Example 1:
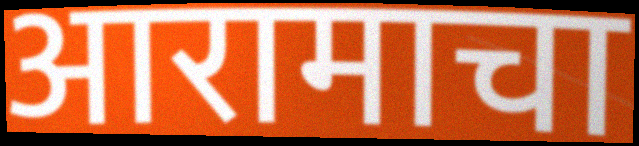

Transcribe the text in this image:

आरामाचा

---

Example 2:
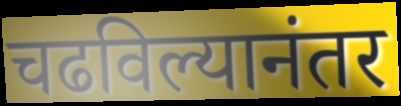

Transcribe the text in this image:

चढविल्यानंतर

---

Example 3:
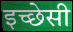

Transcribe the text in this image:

इच्छेसी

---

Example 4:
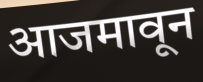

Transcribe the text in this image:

आजमावून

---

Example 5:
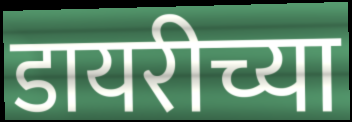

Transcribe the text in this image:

डायरीच्या